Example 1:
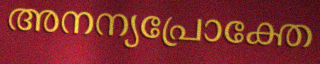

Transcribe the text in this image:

അനന്യപ്രോക്തേ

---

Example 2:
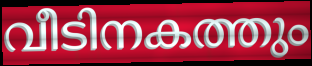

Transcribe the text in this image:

വീടിനകത്തും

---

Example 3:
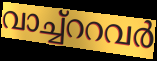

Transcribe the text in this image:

വാച്ച്ററവർ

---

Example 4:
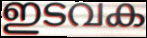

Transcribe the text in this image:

ഇടവക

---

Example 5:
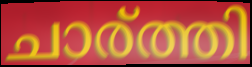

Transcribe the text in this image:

ചാര്ത്തി